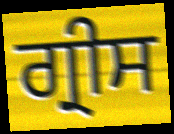
ਗ੍ਰੀਸ